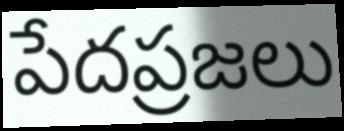
పేదప్రజలు